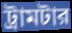
ট্রামটার